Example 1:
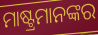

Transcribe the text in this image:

ମାଷ୍ଟ୍ରମାନଙ୍କର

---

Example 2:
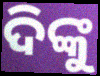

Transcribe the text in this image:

ଦିଙ୍କୁ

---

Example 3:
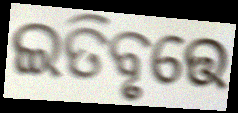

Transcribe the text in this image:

ଇତିବୃତ୍ତେ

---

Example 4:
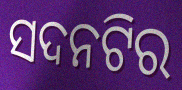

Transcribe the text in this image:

ସଦନଟିର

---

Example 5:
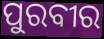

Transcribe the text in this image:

ପୁରବୀର